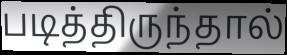
படித்திருந்தால்